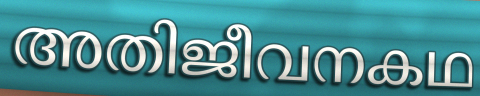
അതിജീവനകഥ